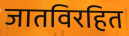
जातविरहित